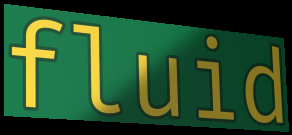
fluid